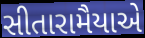
સીતારામૈયાએ